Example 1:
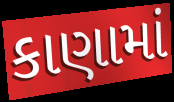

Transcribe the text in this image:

કાણામાં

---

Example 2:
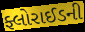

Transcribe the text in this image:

ફ્લોરાઈડની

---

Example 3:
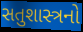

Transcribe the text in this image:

સતુશાસ્ત્રનો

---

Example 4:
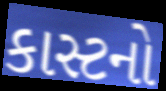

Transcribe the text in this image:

કાસ્ટનો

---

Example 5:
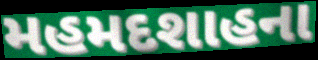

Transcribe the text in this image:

મહમદશાહના